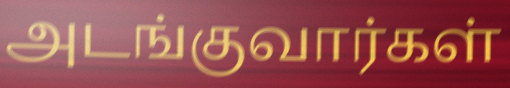
அடங்குவார்கள்